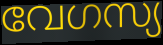
വേഗസ്യ